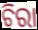
ଚିରା